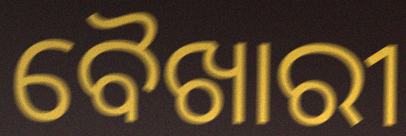
ବୈଖାରୀ